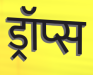
ड्रॉप्‍स